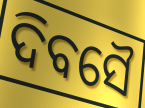
ଦିବସୈ